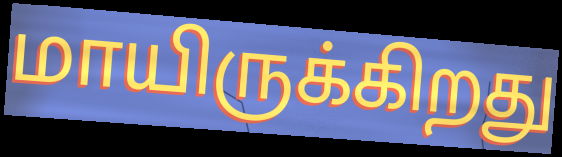
மாயிருக்கிறது